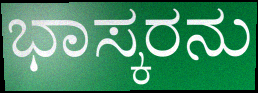
ಭಾಸ್ಕರನು